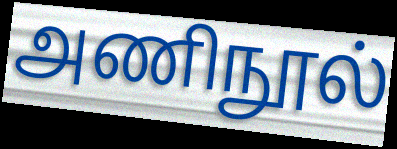
அணிநூல்